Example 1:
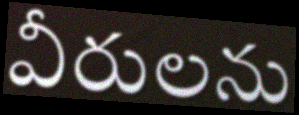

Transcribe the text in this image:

వీరులను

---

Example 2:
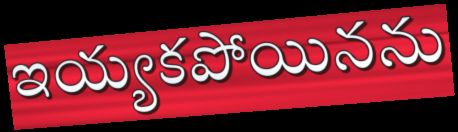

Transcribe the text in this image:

ఇయ్యకపోయినను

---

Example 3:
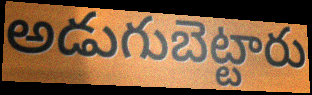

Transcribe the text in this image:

అడుగుబెట్టారు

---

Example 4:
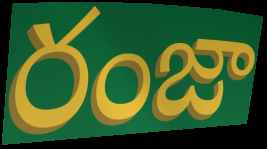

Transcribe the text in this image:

రంజా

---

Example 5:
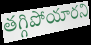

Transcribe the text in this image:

తగ్గిపోయారని